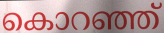
കൊറഞ്ഞ്